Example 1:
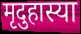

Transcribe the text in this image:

मृदुहास्या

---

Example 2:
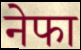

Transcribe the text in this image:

नेफा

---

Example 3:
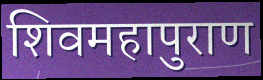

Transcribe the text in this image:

शिवमहापुराण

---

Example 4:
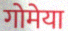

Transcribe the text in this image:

गोमेया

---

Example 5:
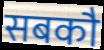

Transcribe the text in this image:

सबकौ